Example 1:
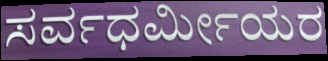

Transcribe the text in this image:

ಸರ್ವಧರ್ಮೀಯರ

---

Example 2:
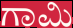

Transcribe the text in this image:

ಗಾಮಿ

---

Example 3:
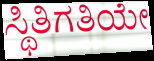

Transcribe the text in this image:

ಸ್ಥಿತಿಗತಿಯೇ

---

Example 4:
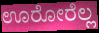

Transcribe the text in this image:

ಊರೋರೆಲ್ಲ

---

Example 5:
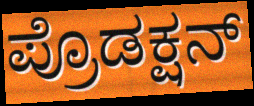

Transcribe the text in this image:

ಪ್ರೊಡಕ್ಷನ್